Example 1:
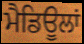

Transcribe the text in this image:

ਮੈਡਿਊਲਾਂ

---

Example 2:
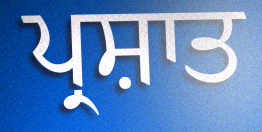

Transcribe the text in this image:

ਪ੍ਰਸ਼ਾਤ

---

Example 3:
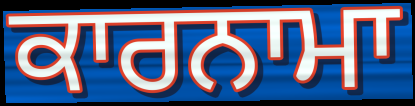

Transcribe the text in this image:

ਕਾਰਨਾਮਾ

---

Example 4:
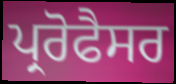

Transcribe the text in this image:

ਪ੍ਰਰੋਫੈਸਰ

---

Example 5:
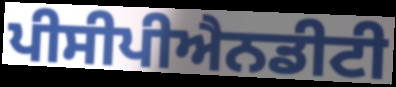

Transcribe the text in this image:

ਪੀਸੀਪੀਐਨਡੀਟੀ